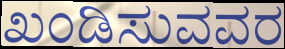
ಖಂಡಿಸುವವರ